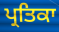
ਪ੍ਰਤਿਕਾ